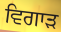
ਵਿਗਾਡ਼